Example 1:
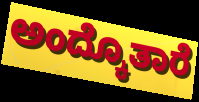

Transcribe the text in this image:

ಅಂದ್ಕೊತಾರೆ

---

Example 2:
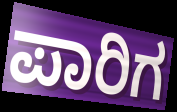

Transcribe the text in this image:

ಪಾರಿಗ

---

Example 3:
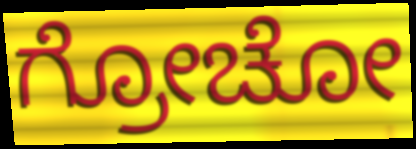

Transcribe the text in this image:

ಗ್ರೋಚೋ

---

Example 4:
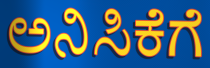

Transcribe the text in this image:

ಅನಿಸಿಕೆಗೆ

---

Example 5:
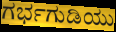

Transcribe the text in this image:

ಗರ್ಭಗುಡಿಯು